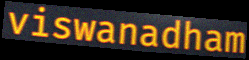
viswanadham